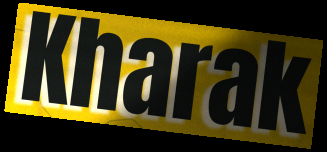
Kharak